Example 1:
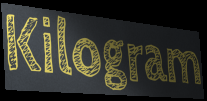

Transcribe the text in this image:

Kilogram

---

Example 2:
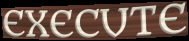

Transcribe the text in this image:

EXECUTE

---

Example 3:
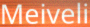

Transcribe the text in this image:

Meiveli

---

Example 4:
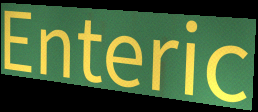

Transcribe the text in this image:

Enteric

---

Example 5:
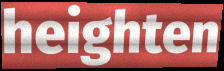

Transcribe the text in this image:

heighten